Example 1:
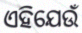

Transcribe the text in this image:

ଏହିଯେଉଁ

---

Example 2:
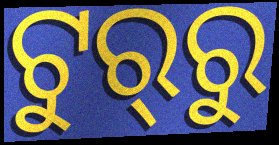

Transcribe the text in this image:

ଟୁର୍‍ରୁ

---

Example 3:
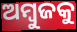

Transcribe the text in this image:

ଅମ୍ବୁଜକୁ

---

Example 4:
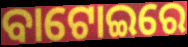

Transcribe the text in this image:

ବାଟୋଇରେ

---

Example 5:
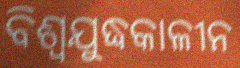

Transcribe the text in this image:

ବିଶ୍ୱଯୁଦ୍ଧକାଳୀନ